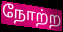
நோற்ற